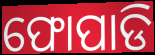
ଫୋପାଡି